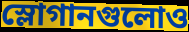
স্লোগানগুলোও